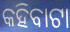
କହିବାଟା